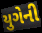
યુગેની